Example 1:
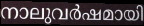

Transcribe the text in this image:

നാലുവർഷമായി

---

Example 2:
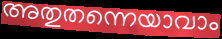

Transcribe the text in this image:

അതുതന്നെയാവാം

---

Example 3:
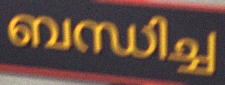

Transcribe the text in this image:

ബന്ധിച്ച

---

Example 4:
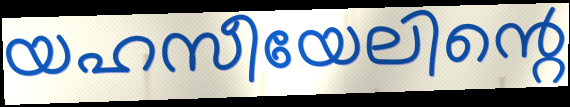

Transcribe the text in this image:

യഹസീയേലിന്റെ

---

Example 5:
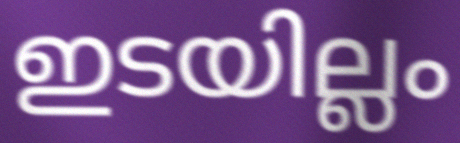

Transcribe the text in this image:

ഇടയില്ലം